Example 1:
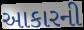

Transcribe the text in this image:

આકારની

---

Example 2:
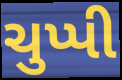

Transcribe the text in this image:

ચુપ્પી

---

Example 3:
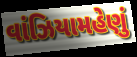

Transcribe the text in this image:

વાંઝિયામહેણું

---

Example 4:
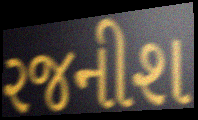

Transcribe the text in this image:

રજનીશ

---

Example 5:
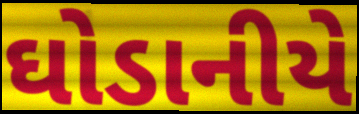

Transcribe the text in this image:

ઘોડાનીયે